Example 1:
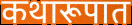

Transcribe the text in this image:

कथारूपात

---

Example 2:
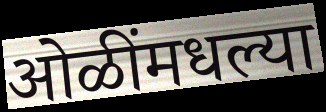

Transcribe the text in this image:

ओळींमधल्या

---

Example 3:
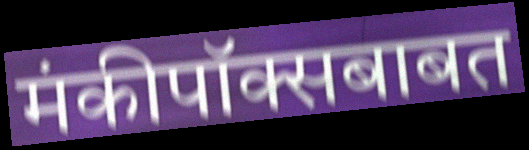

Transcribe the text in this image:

मंकीपॉक्सबाबत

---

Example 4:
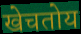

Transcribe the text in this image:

खेचतोय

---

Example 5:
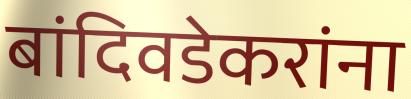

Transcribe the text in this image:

बांदिवडेकरांना